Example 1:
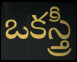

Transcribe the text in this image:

ఒకస్త్రీ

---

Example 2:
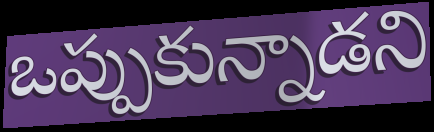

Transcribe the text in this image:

ఒప్పుకున్నాడని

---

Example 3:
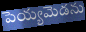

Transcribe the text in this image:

పెయ్యమెడను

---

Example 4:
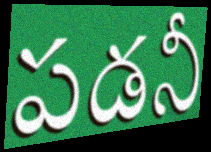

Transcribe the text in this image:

పడనీ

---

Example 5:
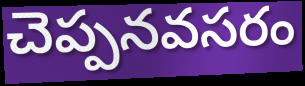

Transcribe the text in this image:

చెప్పనవసరం